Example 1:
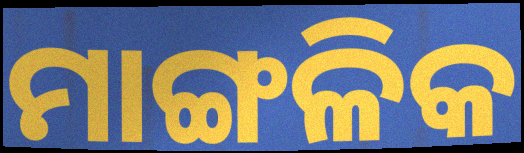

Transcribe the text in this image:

ମାଙ୍ଗଳିକ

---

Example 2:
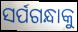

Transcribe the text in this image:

ସର୍ପଗନ୍ଧାକୁ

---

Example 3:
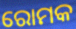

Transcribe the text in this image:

ରୋମକ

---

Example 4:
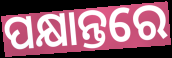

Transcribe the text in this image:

ପକ୍ଷାନ୍ତରେ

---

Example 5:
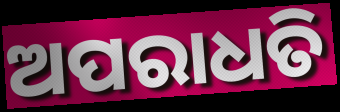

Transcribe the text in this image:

ଅପରାଧତି